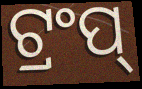
ଟ୍ରଂପ୍